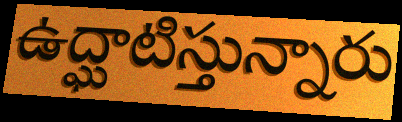
ఉద్ఘాటిస్తున్నారు